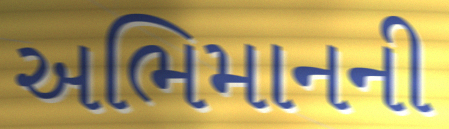
અભિમાનની